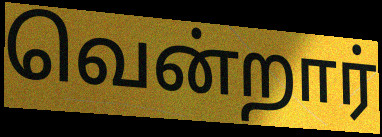
வென்றார்